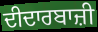
ਦੀਦਾਰਬਾਜ਼ੀ